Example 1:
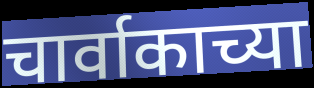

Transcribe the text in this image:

चार्वाकाच्या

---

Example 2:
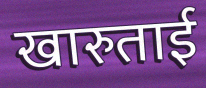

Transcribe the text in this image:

खारुताई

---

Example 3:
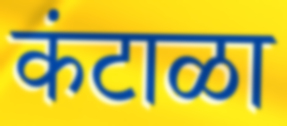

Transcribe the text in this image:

कंटाळा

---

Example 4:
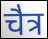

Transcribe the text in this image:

चैत्र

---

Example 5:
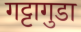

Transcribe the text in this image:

गट्टागुडा